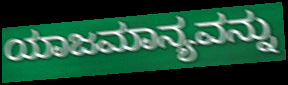
ಯಾಜಮಾನ್ಯವನ್ನು